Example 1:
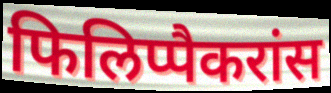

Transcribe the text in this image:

फिलिप्पैकरांस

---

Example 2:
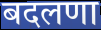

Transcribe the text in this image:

बदलणा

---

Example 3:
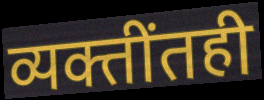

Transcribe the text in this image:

व्यक्तींतही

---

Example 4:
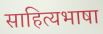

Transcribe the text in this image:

साहित्यभाषा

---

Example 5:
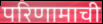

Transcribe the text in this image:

परिणामाची